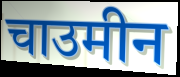
चाउमीन